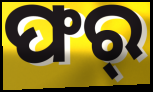
ଫର୍